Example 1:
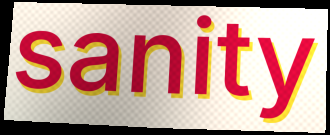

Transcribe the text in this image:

sanity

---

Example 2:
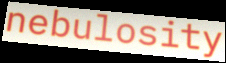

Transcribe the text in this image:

nebulosity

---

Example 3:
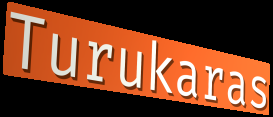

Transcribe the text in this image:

Turukaras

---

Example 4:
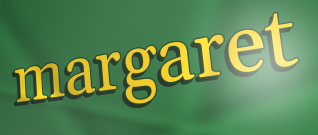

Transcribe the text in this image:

margaret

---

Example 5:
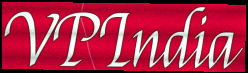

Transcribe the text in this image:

VPIndia